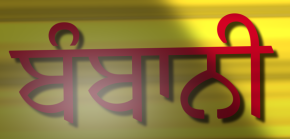
ਬੰਬਾਨੀ